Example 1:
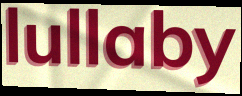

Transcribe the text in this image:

lullaby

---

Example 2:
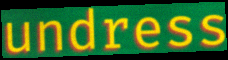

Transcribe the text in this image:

undress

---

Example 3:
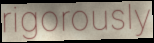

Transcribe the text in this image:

rigorously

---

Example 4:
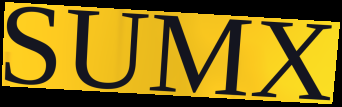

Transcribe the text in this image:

SUMX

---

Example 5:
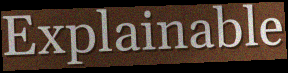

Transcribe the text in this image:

Explainable